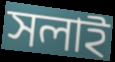
সলাই